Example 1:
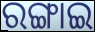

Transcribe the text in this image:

ରଙ୍ଗାଇ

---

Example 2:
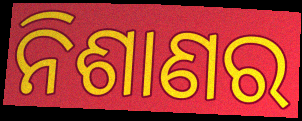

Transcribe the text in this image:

ନିଶାଣର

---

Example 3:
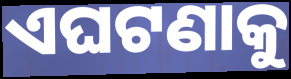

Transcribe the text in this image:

ଏଘଟଣାକୁ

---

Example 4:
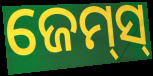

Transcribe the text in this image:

ଜେମ୍‌ସ୍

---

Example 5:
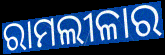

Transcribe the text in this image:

ରାମଲୀଳାର